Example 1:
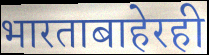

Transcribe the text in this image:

भारताबाहेरही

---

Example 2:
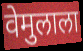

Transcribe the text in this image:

वेमुलाला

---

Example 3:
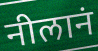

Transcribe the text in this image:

नीलानं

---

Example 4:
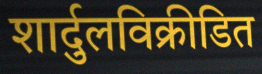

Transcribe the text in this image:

शार्दुलविक्रीडित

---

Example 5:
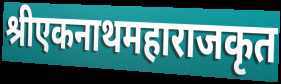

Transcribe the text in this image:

श्रीएकनाथमहाराजकृत